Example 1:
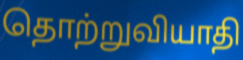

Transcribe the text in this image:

தொற்றுவியாதி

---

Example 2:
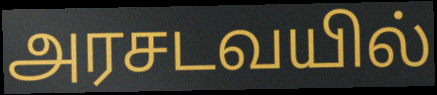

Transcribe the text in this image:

அரசடவயில்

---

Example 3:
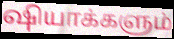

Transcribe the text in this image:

ஷியாக்களும்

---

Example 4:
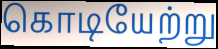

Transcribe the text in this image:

கொடியேற்று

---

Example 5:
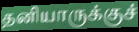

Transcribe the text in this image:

தனியாருக்குச்